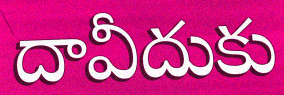
దావీదుకు